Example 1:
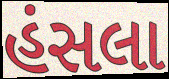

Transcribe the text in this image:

હંસલા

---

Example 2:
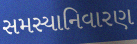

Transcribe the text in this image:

સમસ્યાનિવારણ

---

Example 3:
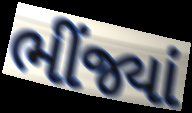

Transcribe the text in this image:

ભીંજ્યાં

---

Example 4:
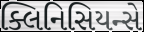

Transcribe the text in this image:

ક્લિનિસિયન્સે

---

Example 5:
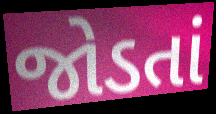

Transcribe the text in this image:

જોડતાં